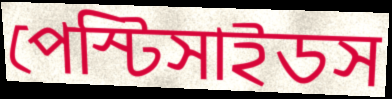
পেস্টিসাইডস